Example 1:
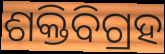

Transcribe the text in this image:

ଶକ୍ତିବିଗ୍ରହ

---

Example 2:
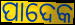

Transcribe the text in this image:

ପାଦେକ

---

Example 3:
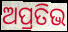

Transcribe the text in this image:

ଅପ୍ରତିଭ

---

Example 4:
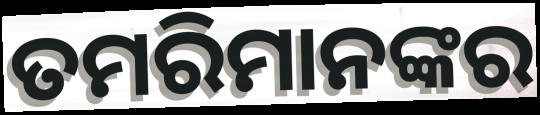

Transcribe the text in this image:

ତମରିମାନଙ୍କର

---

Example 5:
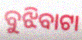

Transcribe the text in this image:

ବୁଝିବାଟା